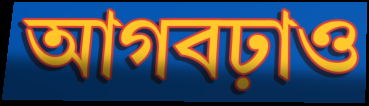
আগবঢ়াও